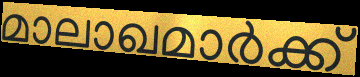
മാലാഖമാർക്ക്